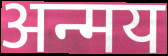
अन्मय